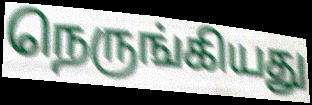
நெருங்கியது